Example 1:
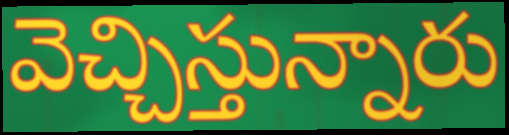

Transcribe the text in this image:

వెచ్చిస్తున్నారు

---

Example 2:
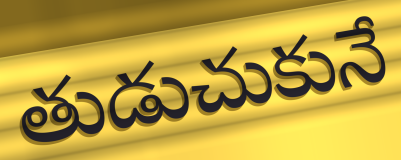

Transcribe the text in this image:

తుడుచుకునే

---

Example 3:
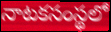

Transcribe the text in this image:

నాటకసంస్థలో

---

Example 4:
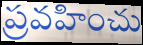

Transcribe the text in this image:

ప్రవహించు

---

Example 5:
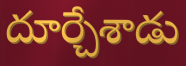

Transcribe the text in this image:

దూర్చేశాడు